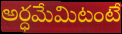
అర్ధమేమిటంటే